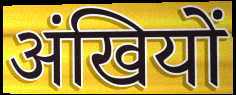
अंखियों